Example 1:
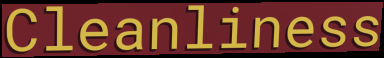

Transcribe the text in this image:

Cleanliness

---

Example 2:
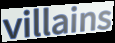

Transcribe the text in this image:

villains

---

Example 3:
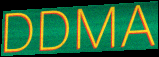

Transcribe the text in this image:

DDMA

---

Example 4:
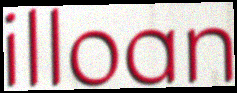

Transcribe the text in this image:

illoan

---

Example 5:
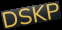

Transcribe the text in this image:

DSKP